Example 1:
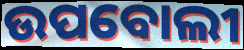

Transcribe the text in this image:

ଉପବୋଲୀ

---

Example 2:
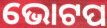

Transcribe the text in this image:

ଭୋଟପ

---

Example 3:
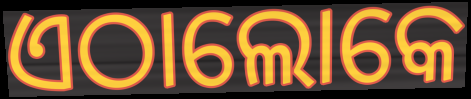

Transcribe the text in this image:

ଏଠାଲୋକେ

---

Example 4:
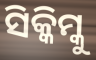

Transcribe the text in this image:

ସିକ୍କିମ୍କୁ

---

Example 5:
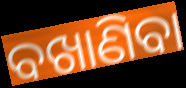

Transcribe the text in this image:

ବଖାଣିବା